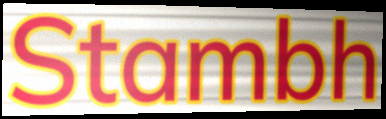
Stambh